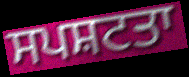
ਸਪਸ਼ਟਤਾ